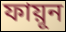
ফায়ূন